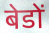
बेडों